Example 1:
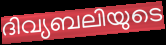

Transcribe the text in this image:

ദിവ്യബലിയുടെ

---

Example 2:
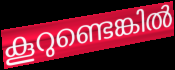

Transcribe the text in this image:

കൂറുണ്ടെങ്കിൽ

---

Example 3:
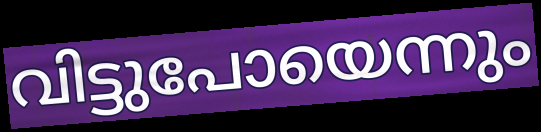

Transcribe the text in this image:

വിട്ടുപോയെന്നും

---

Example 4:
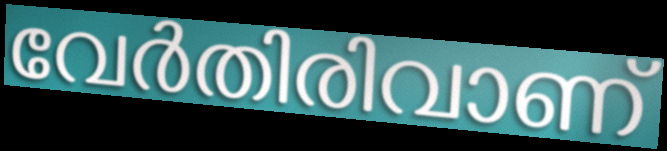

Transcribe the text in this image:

വേർതിരിവാണ്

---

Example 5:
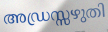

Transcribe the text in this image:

അഡ്രസ്സഴുതി